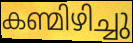
കണ്മിഴിച്ചു